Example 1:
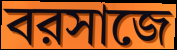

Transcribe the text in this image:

বরসাজে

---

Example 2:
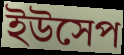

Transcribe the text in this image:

ইউসেপ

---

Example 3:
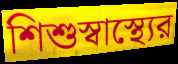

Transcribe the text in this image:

শিশুস্বাস্থ্যের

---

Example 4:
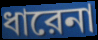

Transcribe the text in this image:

ধারেনা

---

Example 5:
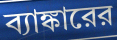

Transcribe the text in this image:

ব্যাঙ্কারের